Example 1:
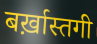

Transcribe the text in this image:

बर्ख़ास्तगी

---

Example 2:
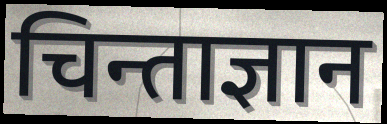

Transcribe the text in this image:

चिन्ताज्ञान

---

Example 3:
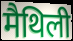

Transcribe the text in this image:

मैथिली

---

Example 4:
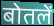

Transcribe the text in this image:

बोतलें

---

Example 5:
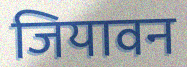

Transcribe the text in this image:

जियावन